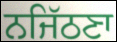
ਨਜਿੱਠਣਾ